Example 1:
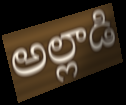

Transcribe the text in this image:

అల్లాడి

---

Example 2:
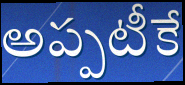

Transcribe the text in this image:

అప్పటీకే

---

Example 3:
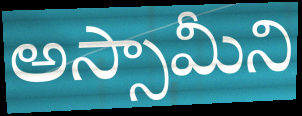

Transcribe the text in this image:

అస్సామీని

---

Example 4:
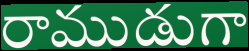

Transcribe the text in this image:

రాముడుగా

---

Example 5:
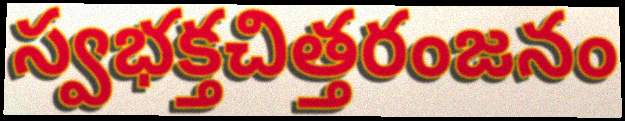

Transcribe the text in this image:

స్వభక్తచిత్తరంజనం